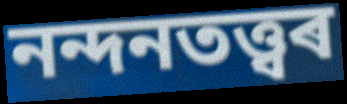
নন্দনতত্ত্বৰ